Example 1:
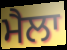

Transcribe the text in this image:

ਮੈਲਾ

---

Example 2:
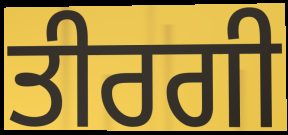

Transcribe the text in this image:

ਤੀਰਗੀ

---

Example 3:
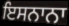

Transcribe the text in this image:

ਇਸਨਾਨਾ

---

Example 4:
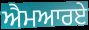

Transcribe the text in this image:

ਐਮਆਰਏ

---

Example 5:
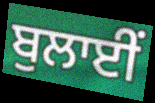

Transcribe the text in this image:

ਬੁਲਾਈਂ